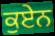
ਕੁਏਨ